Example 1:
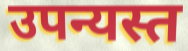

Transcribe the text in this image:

उपन्यस्त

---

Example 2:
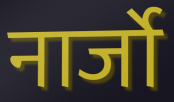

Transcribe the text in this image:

नार्जो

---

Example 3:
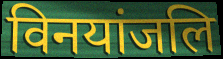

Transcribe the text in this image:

विनयांजलि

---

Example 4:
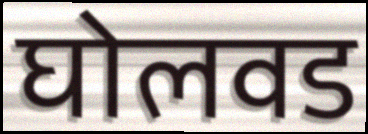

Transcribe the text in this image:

घोलवड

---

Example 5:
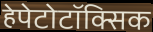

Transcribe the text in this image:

हेपेटोटॉक्सिक